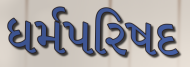
ધર્મપરિષદ